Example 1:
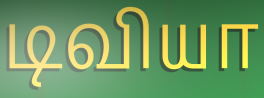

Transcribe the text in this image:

டிவியா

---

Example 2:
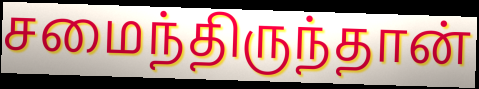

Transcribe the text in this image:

சமைந்திருந்தான்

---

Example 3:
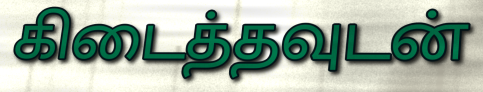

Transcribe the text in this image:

கிடைத்தவுடன்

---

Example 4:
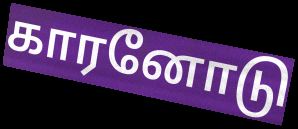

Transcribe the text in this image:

காரனோடு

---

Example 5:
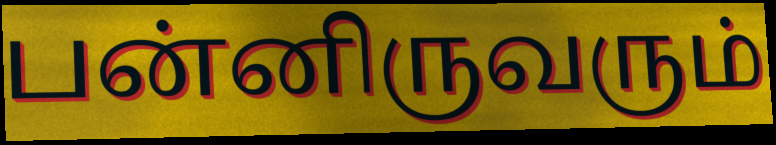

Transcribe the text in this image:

பன்னிருவரும்